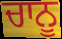
ਚਾਨੂ